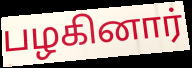
பழகினார்